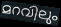
മറവിലും